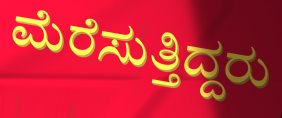
ಮೆರೆಸುತ್ತಿದ್ದರು